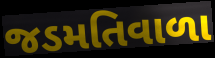
જડમતિવાળા